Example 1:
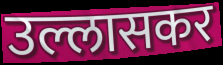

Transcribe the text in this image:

उल्लासकर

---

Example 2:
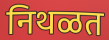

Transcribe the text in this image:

निथळत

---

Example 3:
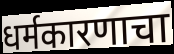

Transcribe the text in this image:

धर्मकारणाचा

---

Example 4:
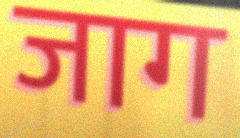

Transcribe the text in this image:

जाग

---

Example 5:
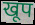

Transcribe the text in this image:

खूप